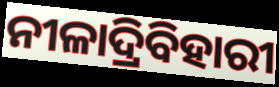
ନୀଳାଦ୍ରିବିହାରୀ